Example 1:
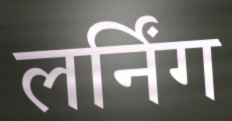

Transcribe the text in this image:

लर्निंग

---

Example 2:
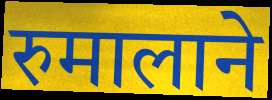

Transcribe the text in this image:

रुमालाने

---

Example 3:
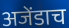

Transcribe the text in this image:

अजेंडाच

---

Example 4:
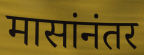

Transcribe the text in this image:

मासांनंतर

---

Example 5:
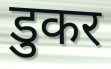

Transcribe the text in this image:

डुकर